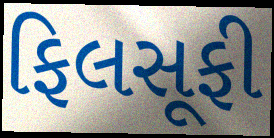
ફિલસૂફી